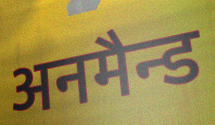
अनमैन्ड